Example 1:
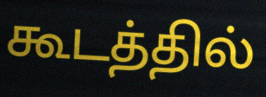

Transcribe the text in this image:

கூடத்தில்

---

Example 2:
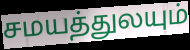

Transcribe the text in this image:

சமயத்துலயும்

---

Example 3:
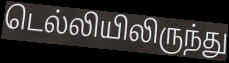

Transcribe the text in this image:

டெல்லியிலிருந்து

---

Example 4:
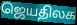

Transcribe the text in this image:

ஜெயதிலக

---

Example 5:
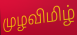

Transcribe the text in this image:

முழவிமிழ்